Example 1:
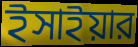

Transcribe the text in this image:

ইসাইয়ার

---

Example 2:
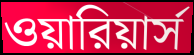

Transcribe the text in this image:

ওয়ারিয়ার্স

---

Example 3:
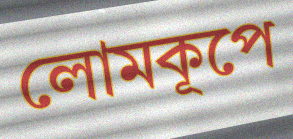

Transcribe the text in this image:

লোমকূপে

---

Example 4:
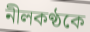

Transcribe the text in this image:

নীলকণ্ঠকে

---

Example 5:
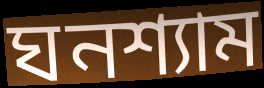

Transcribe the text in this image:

ঘনশ্যাম